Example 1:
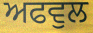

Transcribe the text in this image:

ਅਫਵੁਲ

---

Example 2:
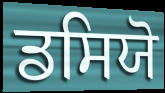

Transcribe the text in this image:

ਡਸਿਯੋ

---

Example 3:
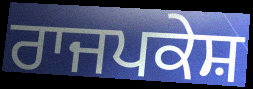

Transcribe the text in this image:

ਰਾਜਪਕੇਸ਼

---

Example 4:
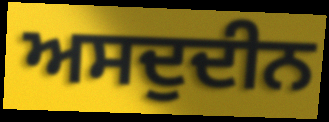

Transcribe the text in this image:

ਅਸਦੁਦੀਨ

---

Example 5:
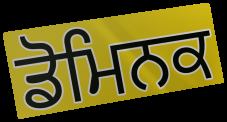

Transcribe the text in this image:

ਡੋਮਿਨਕ